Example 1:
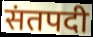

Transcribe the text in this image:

संतपदी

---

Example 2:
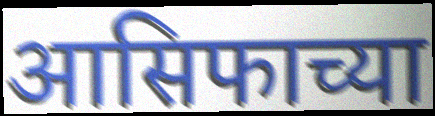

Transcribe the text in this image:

आसिफाच्या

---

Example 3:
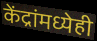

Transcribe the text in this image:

केंद्रांमध्येही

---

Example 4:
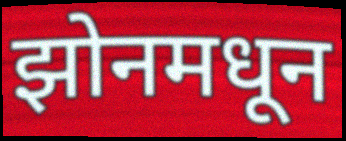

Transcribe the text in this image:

झोनमधून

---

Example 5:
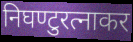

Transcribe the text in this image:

निघण्टुरत्नाकर